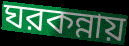
ঘরকন্নায়